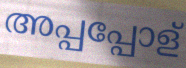
അപ്പപ്പോള്